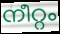
നീറ്റം